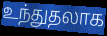
உந்துதலாக